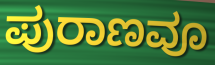
ಪುರಾಣವೂ